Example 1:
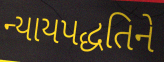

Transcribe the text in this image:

ન્યાયપદ્ધતિને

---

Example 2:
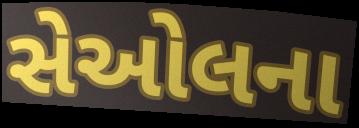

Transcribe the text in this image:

સેઓલના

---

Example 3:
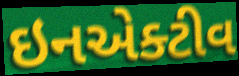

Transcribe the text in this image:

ઇનએક્ટીવ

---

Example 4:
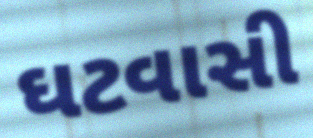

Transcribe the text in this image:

ઘટવાસી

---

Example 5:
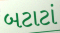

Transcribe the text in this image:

બટાટાં